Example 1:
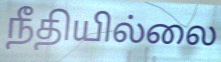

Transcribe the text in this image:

நீதியில்லை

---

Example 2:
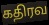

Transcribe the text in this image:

கதிரவ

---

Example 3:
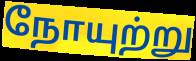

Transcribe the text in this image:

நோயுற்று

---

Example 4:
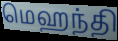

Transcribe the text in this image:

மெஹந்தி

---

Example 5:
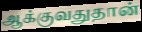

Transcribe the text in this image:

ஆக்குவதுதான்